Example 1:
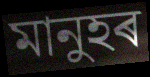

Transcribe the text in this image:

মানুহৰ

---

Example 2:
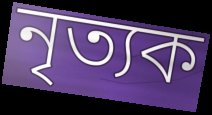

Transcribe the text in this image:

নৃত্যক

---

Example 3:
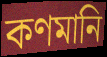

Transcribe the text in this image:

কণমানি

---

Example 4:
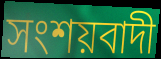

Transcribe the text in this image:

সংশয়বাদী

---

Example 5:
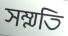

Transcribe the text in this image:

সম্মতি